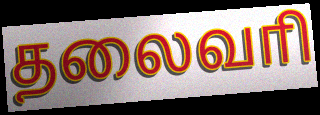
தலைவரி